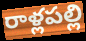
రాళ్లపల్లి